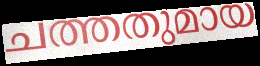
ചത്തതുമായ